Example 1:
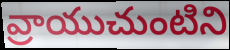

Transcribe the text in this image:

వ్రాయుచుంటిని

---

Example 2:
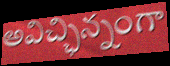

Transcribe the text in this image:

అవిచ్ఛిన్నంగా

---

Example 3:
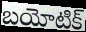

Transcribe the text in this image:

బయోటిక్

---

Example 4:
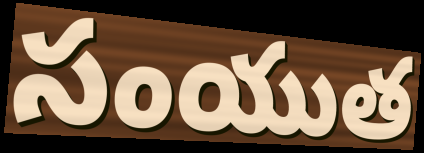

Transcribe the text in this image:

సంయుత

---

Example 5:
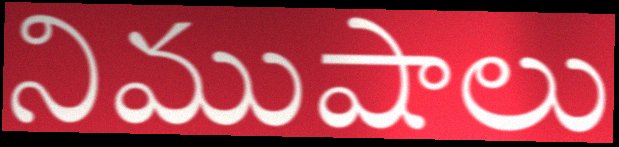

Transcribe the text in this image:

నిముషాలు